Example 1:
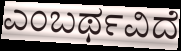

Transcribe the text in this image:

ಎಂಬರ್ಥವಿದೆ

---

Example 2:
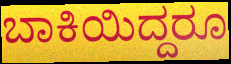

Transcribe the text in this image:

ಬಾಕಿಯಿದ್ದರೂ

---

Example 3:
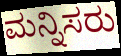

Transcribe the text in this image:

ಮನ್ನಿಸರು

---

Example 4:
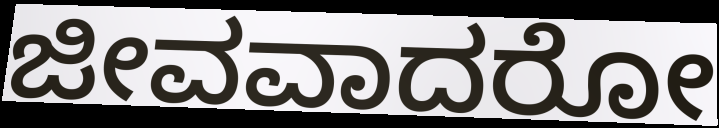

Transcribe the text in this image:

ಜೀವವಾದರೋ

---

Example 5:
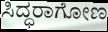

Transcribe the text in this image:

ಸಿದ್ಧರಾಗೋಣ